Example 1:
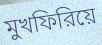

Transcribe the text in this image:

মুখফিরিয়ে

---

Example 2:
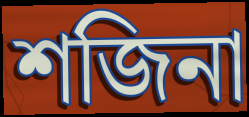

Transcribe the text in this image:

শজিনা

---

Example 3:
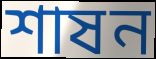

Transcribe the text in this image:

শাষন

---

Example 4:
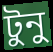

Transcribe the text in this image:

টুনু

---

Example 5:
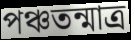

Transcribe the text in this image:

পঞ্চতন্মাত্র